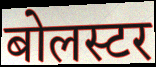
बोलस्टर